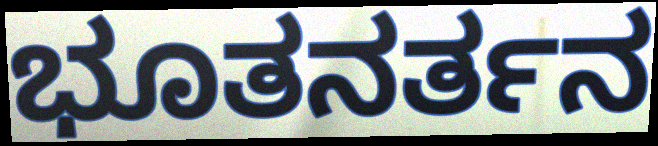
ಭೂತನರ್ತನ